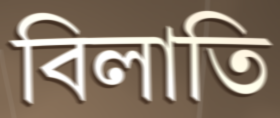
বিলাতি